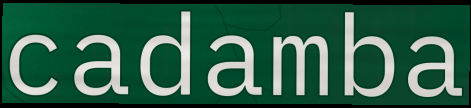
cadamba